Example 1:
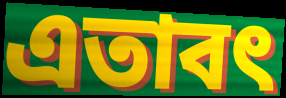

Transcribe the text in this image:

এতাবৎ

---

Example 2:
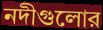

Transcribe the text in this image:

নদীগুলোর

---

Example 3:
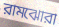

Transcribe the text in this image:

রামঝোরা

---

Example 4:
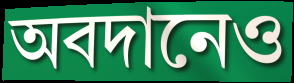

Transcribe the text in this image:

অবদানেও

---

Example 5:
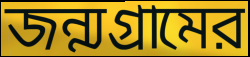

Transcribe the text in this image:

জন্মগ্রামের